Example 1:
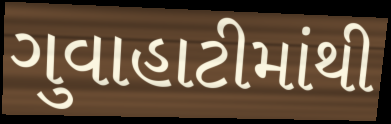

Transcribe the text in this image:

ગુવાહાટીમાંથી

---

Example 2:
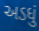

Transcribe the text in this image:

અડધું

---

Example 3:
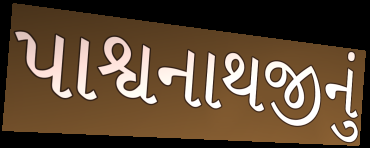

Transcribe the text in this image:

પાશ્વનાથજીનું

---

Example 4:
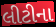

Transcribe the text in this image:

લીટીના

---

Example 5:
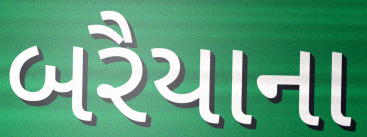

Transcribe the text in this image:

બરૈયાના